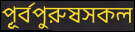
পূৰ্বপুৰুষসকল